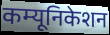
कम्यूनिकेशन